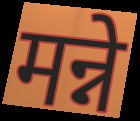
मन्ने